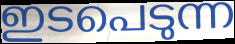
ഇടപെടുന്ന